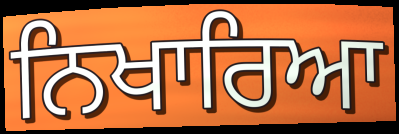
ਨਿਖਾਰਿਆ